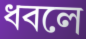
ধবলে